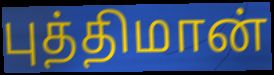
புத்திமான்